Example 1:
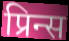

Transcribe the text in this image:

प्रिन्स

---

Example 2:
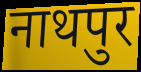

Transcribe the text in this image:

नाथपुर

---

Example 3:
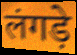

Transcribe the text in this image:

लंगड़े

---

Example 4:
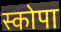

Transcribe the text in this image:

स्कोपा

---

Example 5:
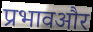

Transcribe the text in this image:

प्रभावऔर